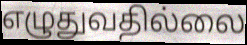
எழுதுவதில்லை